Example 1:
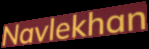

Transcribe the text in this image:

Navlekhan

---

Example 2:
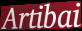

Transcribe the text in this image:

Artibai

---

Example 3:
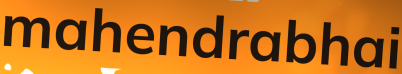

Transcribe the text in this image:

mahendrabhai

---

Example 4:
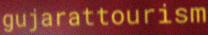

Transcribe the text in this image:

gujarattourism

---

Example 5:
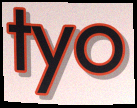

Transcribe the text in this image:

tyo